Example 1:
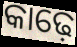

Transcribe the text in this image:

କାଢ଼େ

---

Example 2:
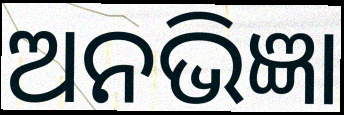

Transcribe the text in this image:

ଅନଭିଜ୍ଞା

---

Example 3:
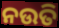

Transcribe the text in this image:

ନଉତି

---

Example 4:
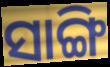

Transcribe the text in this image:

ସାଙ୍ଗି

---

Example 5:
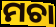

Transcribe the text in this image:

ମଚା